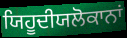
ਯਿਹੂਦੀਯਲੋਕਾਨਾਂ